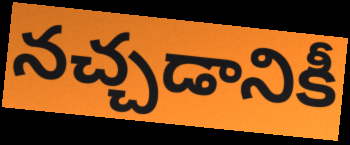
నచ్చడానికీ